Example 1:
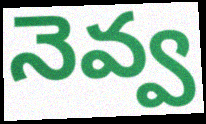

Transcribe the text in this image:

నెవ్వ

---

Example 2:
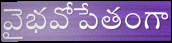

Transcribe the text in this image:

వైభవోపేతంగా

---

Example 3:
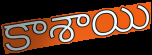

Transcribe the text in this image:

కాశాయి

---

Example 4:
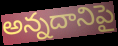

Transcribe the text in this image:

అన్నదానిపై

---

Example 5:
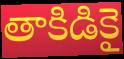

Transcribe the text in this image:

తాకిడికై